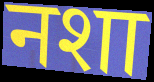
नशा